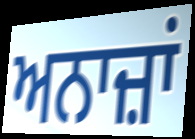
ਅਨਾਜ਼ਾਂ